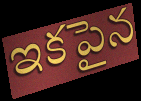
ఇకపైన